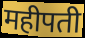
महीपती